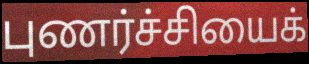
புணர்ச்சியைக்